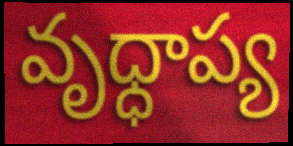
వృధ్ధాప్య